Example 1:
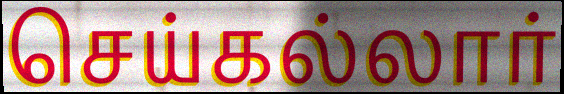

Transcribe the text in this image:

செய்கல்லார்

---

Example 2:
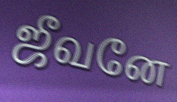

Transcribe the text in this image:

ஜீவனே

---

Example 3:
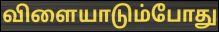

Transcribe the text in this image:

விளையாடும்போது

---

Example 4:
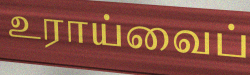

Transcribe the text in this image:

உராய்வைப்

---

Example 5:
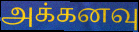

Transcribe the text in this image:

அக்கனவு